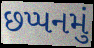
છપ્પનમું